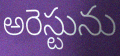
అరెస్టును